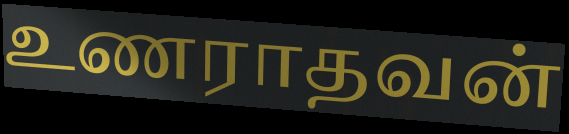
உணராதவன்